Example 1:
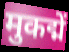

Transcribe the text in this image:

मुकद्में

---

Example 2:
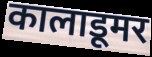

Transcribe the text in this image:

कालाडूमर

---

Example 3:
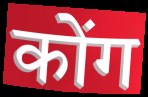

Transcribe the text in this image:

कोंग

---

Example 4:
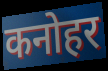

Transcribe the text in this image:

कनोहर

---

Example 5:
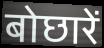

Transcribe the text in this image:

बोछारें